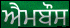
ਐਮਬੌਸ